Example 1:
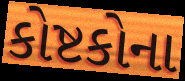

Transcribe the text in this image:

કોષ્ટકોના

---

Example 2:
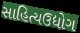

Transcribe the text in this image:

સાહિત્યઉદ્યોગ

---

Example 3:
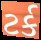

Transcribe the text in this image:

ટર્ક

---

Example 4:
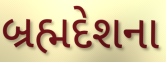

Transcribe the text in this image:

બ્રહ્મદેશના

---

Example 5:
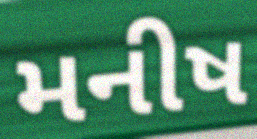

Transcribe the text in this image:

મનીષ